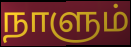
நாளும்